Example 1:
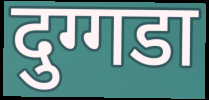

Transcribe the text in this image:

दुग्गडा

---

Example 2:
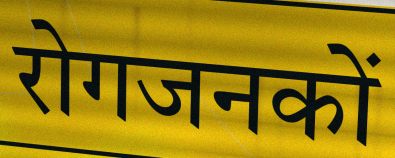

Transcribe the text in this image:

रोगजनकों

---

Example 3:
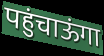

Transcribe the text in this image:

पहुंचाऊंगा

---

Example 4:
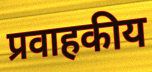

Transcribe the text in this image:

प्रवाहकीय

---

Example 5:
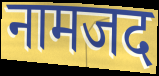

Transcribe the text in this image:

नामजद